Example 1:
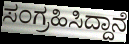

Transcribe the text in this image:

ಸಂಗ್ರಹಿಸಿದ್ದಾನೆ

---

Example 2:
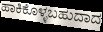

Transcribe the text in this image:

ಹಾಕಿಕೊಳ್ಳಬಹುದಾದ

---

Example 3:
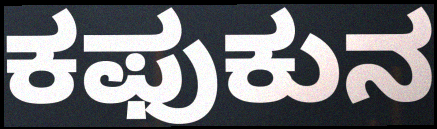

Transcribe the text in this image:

ಕಫುಕುನ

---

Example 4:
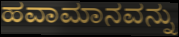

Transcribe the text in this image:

ಹವಾಮಾನವನ್ನು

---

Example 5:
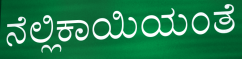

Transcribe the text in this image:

ನೆಲ್ಲಿಕಾಯಿಯಂತೆ